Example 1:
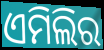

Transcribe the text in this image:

ଏମିଲିର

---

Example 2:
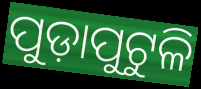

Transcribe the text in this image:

ପୁଡ଼ାପୁଟୁଳି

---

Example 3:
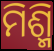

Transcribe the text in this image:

ମିଶ୍ମି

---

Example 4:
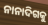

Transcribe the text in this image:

ନାନାଦିଗକୁ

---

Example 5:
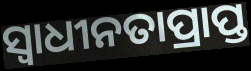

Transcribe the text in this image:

ସ୍ବାଧୀନତାପ୍ରାପ୍ତ